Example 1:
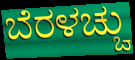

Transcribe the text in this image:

ಬೆರಳಚ್ಚು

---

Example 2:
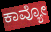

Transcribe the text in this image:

ಕಾವ್ಯೋ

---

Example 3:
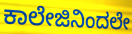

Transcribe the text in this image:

ಕಾಲೇಜಿನಿಂದಲೇ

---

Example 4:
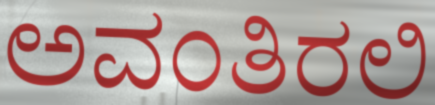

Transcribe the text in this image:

ಅವಂತಿರಲಿ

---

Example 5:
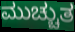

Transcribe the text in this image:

ಮುಚ್ಚುತ